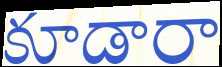
కూడారా